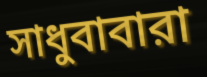
সাধুবাবারা